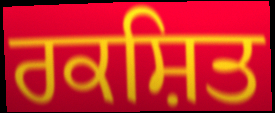
ਰਕਸ਼ਿਤ